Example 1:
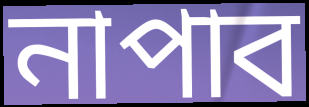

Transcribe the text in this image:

নাপাব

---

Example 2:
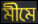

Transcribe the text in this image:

মীমে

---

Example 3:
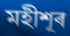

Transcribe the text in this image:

মহীশূৰ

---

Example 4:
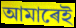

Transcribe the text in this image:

আমাৰেই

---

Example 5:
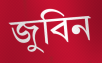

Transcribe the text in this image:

জুবিন